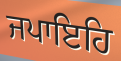
ਜਪਾਇਹਿ